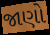
જાણો